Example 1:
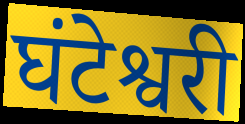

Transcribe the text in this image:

घंटेश्वरी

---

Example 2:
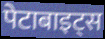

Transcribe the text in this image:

पेटाबाइट्स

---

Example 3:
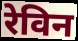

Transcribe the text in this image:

रेविन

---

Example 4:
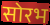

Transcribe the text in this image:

सोरभ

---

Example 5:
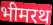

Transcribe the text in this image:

भीमरथ